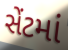
સેંટમાં